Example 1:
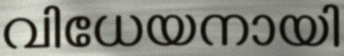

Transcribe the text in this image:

വിധേയനായി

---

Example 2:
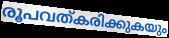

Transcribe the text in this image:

രൂപവത്കരിക്കുകയും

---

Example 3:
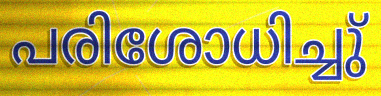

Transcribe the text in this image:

പരിശോധിച്ചു്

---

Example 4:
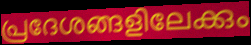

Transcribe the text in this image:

പ്രദേശങ്ങളിലേക്കും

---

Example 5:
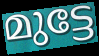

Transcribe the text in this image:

മുട്ടേ